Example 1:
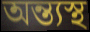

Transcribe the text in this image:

অন্ত্যস্থ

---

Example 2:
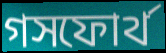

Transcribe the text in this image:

গসফোর্থ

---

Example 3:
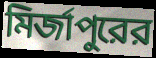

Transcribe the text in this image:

মির্জাপুরের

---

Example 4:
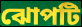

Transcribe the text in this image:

ঝোপটি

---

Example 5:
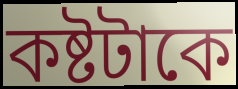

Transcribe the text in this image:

কষ্টটাকে